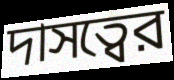
দাসত্বের